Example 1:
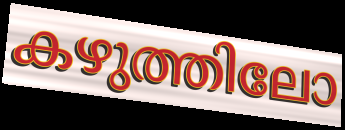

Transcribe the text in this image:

കഴുത്തിലോ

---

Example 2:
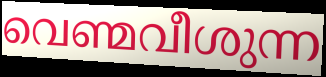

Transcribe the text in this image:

വെണ്മവീശുന്ന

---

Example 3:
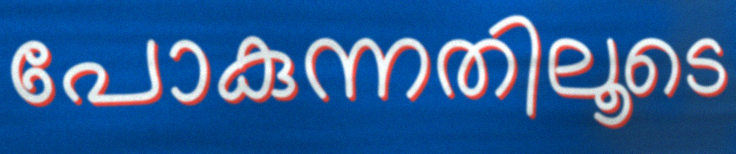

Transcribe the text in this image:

പോകുന്നതിലൂടെ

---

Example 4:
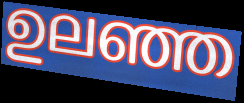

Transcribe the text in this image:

ഉലഞ്ഞ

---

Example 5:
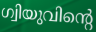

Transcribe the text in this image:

ഗ്വിയുവിന്റെ